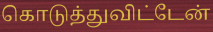
கொடுத்துவிட்டேன்